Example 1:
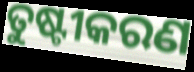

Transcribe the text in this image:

ତୁଷ୍ଟୀକରଣ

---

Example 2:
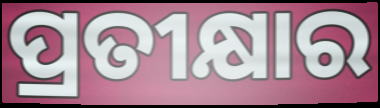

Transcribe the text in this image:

ପ୍ରତୀକ୍ଷାର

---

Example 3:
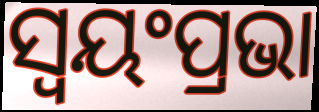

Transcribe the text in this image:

ସ୍ଵୟଂପ୍ରଭା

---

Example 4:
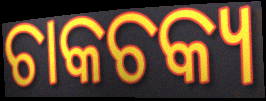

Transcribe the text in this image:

ଚାକଚକ୍ୟ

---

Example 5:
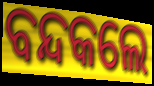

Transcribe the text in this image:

ବନ୍ଦକଲେ